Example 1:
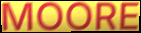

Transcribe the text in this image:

MOORE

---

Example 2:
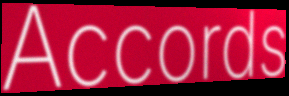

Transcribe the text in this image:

Accords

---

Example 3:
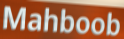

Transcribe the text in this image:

Mahboob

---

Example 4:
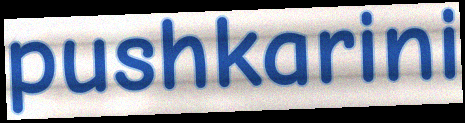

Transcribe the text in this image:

pushkarini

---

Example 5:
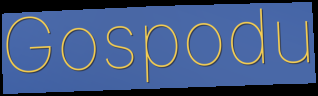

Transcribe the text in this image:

Gospodu